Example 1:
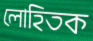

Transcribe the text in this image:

লোহিতক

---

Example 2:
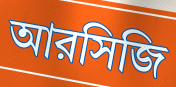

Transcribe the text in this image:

আরসিজি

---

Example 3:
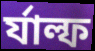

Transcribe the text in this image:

র্যাল্ফ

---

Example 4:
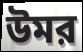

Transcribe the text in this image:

উমর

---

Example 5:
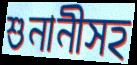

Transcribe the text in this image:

শুনানীসহ